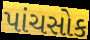
પાંચસોક